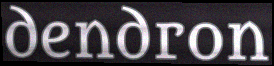
dendron